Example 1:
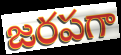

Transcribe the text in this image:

జరపగా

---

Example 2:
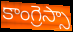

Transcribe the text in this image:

కాంగ్రెస్సా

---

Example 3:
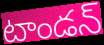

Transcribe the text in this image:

టాండన్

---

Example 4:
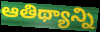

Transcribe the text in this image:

ఆతిథ్యాన్ని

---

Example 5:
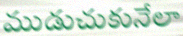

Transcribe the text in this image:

ముడుచుకునేలా